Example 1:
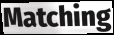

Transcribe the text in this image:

Matching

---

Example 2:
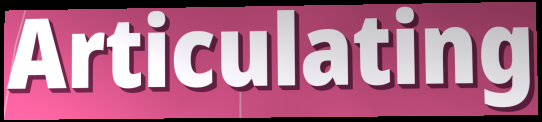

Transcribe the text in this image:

Articulating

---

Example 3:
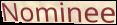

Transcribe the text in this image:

Nominee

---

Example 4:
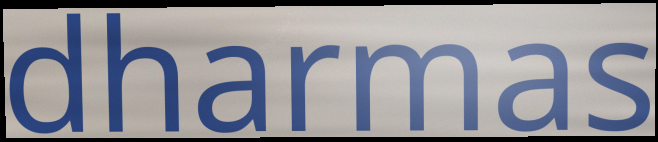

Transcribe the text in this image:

dharmas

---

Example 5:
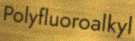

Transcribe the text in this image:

Polyfluoroalkyl